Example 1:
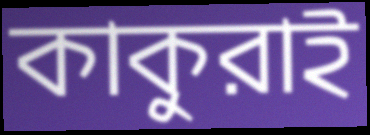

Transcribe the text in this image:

কাকুরাই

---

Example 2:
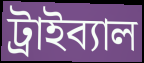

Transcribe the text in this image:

ট্রাইব্যাল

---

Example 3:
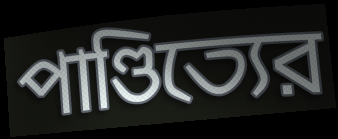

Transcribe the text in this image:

পাণ্ডিত্যের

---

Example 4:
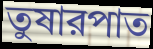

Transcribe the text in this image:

তুষারপাত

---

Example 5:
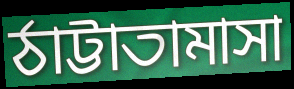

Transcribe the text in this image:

ঠাট্টাতামাসা